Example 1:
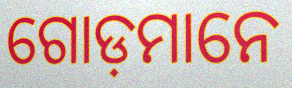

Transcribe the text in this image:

ଗୋଡ଼ମାନେ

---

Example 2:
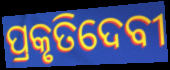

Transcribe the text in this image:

ପ୍ରକୃତିଦେବୀ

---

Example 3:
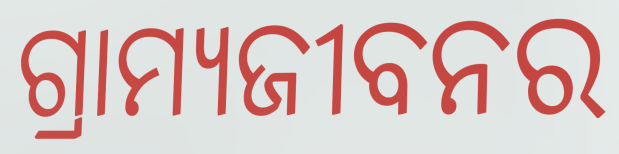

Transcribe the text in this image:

ଗ୍ରାମ୍ୟଜୀବନର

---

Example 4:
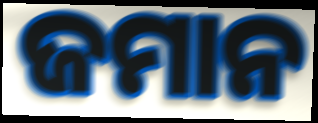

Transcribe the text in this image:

ଜମାନ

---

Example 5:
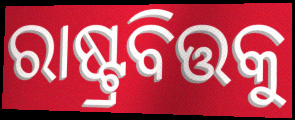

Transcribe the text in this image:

ରାଷ୍ଟ୍ରବିତ୍ତକୁ